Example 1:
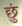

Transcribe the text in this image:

छुं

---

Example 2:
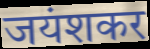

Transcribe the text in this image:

जयंशकर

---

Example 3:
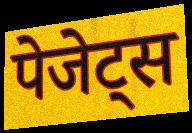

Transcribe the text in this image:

पेजेट्स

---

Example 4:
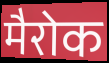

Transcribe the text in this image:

मैरोक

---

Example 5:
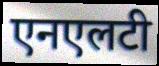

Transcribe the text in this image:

एनएलटी